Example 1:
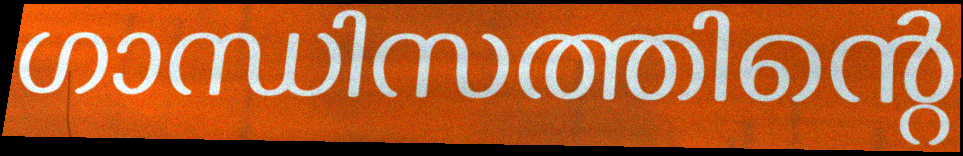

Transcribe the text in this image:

ഗാന്ധിസത്തിന്റെ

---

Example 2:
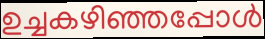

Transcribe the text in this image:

ഉച്ചകഴിഞ്ഞപ്പോൾ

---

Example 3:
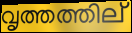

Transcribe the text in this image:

വൃത്തത്തില്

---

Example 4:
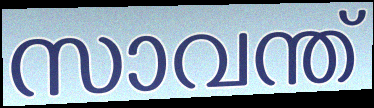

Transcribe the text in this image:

സാവന്ത്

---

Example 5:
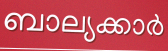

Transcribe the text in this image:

ബാല്യക്കാർ